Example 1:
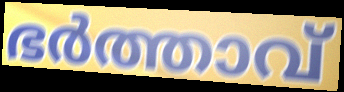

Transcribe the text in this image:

ഭർത്താവ്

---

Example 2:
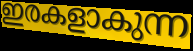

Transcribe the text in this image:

ഇരകളാകുന്ന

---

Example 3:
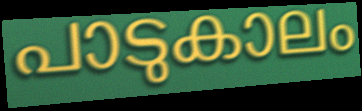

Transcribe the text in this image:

പാടുകാലം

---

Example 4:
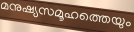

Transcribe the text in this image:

മനുഷ്യസമൂഹത്തെയും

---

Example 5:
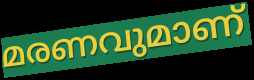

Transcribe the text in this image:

മരണവുമാണ്